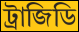
ট্রাজিডি